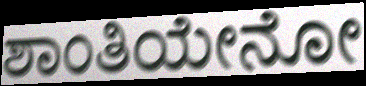
ಶಾಂತಿಯೇನೋ